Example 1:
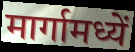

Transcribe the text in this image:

मार्गामध्यें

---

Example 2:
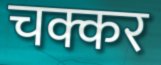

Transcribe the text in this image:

चक्कर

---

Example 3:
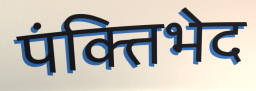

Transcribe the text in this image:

पंक्तिभेद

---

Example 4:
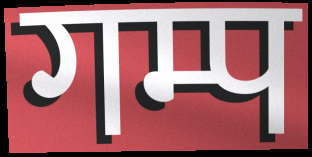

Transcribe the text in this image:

गम्प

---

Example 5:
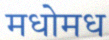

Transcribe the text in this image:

मधोमध